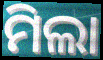
ମିଲା